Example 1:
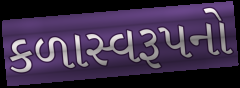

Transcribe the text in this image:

કળાસ્વરૂપનો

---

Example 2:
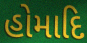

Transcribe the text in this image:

હોમાદિ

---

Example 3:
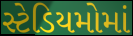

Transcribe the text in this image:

સ્ટેડિયમોમાં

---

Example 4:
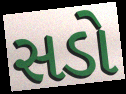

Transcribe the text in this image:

સડો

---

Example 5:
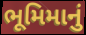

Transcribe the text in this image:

ભૂમિમાનું